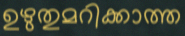
ഉഴുതുമറിക്കാത്ത